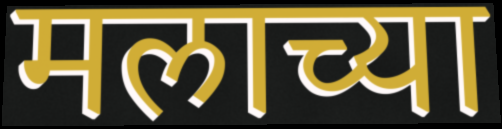
मलाच्या